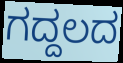
ಗದ್ದಲದ